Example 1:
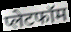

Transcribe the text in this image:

प्लेटफॉम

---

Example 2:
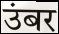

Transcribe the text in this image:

उंबर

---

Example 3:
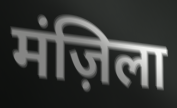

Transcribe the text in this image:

मंज़िला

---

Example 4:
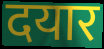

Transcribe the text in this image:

दयार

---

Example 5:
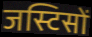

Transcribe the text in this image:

जस्टिसों